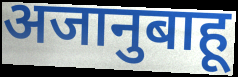
अजानुबाहू